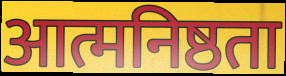
आत्मनिष्ठता